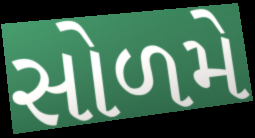
સોળમે